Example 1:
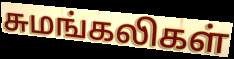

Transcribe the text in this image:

சுமங்கலிகள்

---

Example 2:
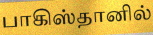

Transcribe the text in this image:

பாகிஸ்தானில்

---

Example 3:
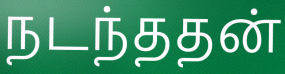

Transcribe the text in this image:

நடந்ததன்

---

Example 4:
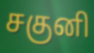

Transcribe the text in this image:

சகுனி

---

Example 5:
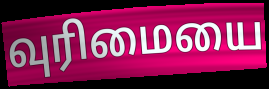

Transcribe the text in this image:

வுரிமையை